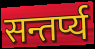
सन्तर्प्य